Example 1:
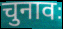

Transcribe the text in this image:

चुनावः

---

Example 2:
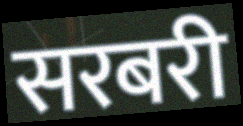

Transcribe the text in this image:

सरबरी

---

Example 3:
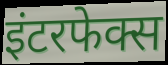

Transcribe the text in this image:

इंटरफेक्स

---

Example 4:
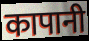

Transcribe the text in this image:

कापानी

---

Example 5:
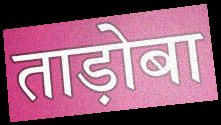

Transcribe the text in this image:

ताड़ोबा